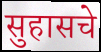
सुहासचे